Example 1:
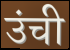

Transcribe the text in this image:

उंची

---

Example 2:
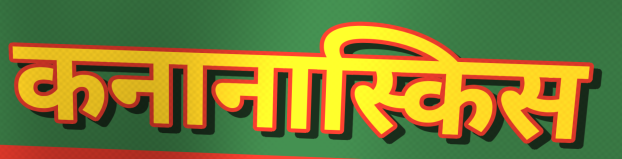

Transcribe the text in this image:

कनानास्किस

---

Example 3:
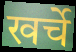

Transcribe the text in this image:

खर्चे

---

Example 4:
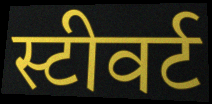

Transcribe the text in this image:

स्टीवर्ट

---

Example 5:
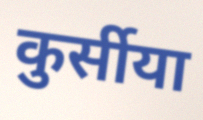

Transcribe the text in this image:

कुर्सीया